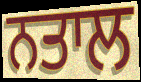
ਨਤਾਲ